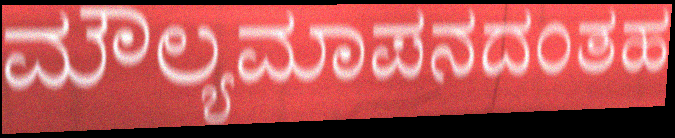
ಮೌಲ್ಯಮಾಪನದಂತಹ